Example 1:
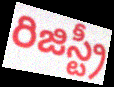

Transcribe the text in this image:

రిజిస్ట్రీ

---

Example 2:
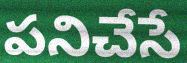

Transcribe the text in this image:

పనిచేసే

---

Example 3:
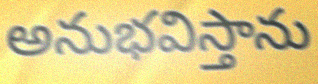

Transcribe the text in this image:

అనుభవిస్తాను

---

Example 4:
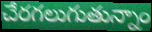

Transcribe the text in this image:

చేరగలుగుతున్నాం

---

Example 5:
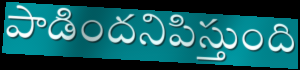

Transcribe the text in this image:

పాడిందనిపిస్తుంది